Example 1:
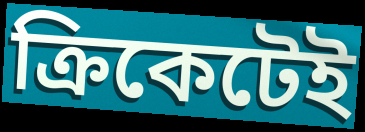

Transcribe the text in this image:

ক্রিকেটেই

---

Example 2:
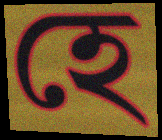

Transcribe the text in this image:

হে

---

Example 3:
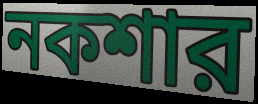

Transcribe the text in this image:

নকশার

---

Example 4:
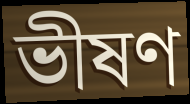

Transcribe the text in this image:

ভীষণ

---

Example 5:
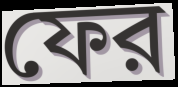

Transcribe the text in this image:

ফের